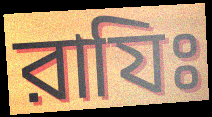
রাযিঃ